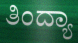
ತಿಂದ್ಯಾ